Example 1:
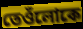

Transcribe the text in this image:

তেওঁলোকে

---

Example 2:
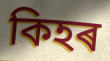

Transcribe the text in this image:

কিহৰ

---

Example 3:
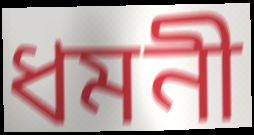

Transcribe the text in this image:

ধমনী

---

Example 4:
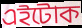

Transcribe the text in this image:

এইটোক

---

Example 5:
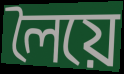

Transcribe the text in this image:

লৈয়ে